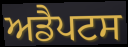
ਅਡੈਪਟਸ